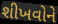
શીખવોને